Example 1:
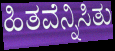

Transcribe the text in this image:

ಹಿತವೆನ್ನಿಸಿತು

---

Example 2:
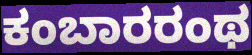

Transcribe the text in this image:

ಕಂಬಾರರಂಥ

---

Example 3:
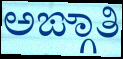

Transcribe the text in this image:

ಅಙ್ಗಾತಿ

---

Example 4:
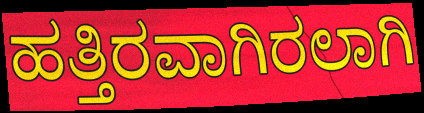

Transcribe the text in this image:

ಹತ್ತಿರವಾಗಿರಲಾಗಿ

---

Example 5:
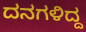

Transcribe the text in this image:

ದನಗಳಿದ್ದ